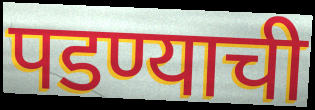
पडण्याची